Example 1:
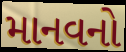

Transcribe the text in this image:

માનવનો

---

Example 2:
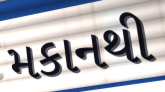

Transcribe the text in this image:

મકાનથી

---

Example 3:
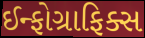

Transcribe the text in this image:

ઈન્ફોગ્રાફિક્સ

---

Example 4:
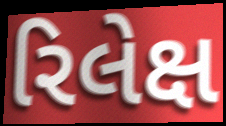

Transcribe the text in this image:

રિલેક્ષ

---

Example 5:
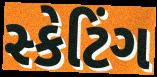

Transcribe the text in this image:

સ્કેટિંગ